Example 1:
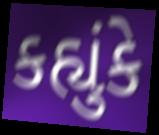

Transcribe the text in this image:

કહ્યુંકે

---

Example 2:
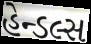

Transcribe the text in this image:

હેન્ડલ્સ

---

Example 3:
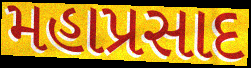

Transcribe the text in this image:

મહાપ્રસાદ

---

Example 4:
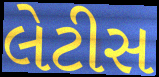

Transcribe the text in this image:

લેટીસ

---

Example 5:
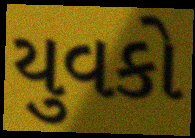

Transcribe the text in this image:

યુવકો